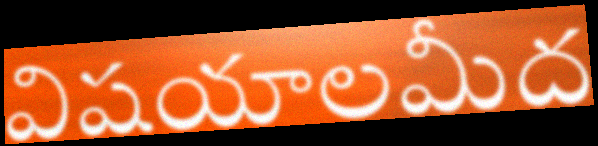
విషయాలమీద